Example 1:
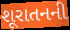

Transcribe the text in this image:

શૂરાતનની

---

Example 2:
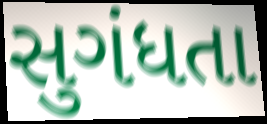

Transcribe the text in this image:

સુગંધતા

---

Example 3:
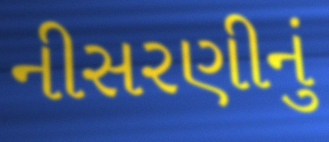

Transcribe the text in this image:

નીસરણીનું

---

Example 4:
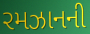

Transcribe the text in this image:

રમઝાનની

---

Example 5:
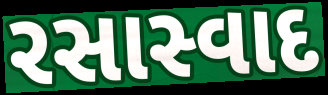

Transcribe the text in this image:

રસાસ્વાદ